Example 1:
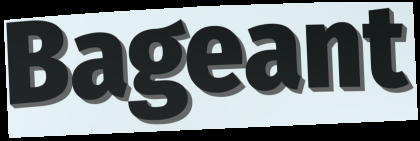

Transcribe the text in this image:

Bageant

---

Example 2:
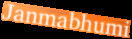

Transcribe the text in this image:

Janmabhumi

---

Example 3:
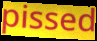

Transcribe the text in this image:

pissed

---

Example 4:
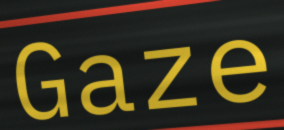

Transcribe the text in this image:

Gaze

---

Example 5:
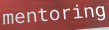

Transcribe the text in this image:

mentoring